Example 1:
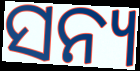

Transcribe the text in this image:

ସନ୍ୟ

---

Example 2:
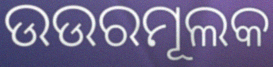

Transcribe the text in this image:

ଉଉରମୂଲକ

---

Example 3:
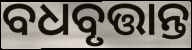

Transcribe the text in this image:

ବଧବୃତ୍ତାନ୍ତ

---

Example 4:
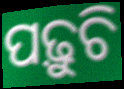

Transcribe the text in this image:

ପଢ଼ୁଚି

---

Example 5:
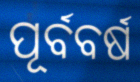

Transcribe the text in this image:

ପୂର୍ବବର୍ଷ